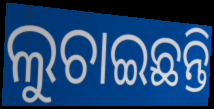
ଲୁଚାଇଛନ୍ତି